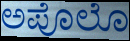
ಅಪೊಲೊ